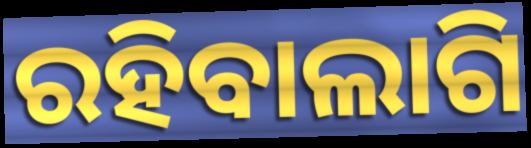
ରହିବାଲାଗି